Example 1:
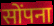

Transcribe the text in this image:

सोंपना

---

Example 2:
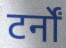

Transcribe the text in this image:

टर्नों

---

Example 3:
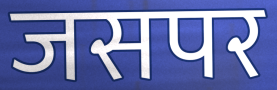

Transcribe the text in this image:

जसपर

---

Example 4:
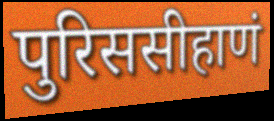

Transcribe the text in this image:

पुरिससीहाणं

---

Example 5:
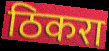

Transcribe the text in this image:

ठिकरा